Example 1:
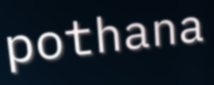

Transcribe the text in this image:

pothana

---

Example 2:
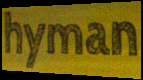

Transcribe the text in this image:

hyman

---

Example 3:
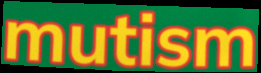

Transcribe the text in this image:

mutism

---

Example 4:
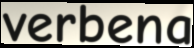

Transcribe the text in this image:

verbena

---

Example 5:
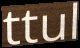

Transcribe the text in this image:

ttul